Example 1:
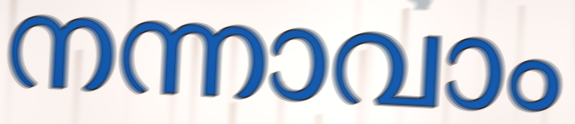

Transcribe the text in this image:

നന്നാവാം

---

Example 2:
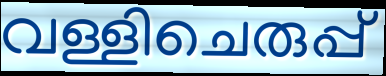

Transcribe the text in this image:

വള്ളിചെരുപ്പ്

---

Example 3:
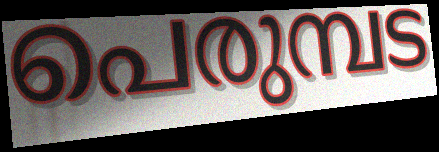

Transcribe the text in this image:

പെരുമ്പട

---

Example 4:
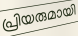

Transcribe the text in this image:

പ്രിയരുമായി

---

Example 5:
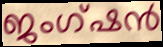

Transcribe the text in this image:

ജംഗ്ഷൻ